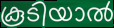
കൂടിയാൽ